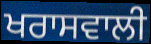
ਖਰਾਸਵਾਲੀ